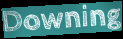
Downing